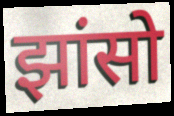
झांसो